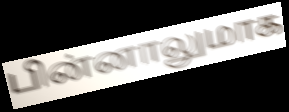
பின்னாலுமாக